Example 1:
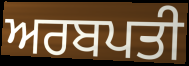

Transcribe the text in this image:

ਅਰਬਪਤੀ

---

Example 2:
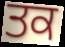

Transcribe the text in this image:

ਤਕ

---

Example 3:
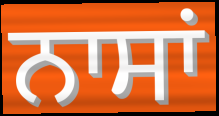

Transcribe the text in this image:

ਨਾਸਾਂ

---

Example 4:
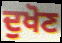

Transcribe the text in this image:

ਦੁਖੋਣ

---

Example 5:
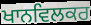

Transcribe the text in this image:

ਖਾਨਵਿਲਕਰ